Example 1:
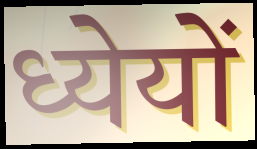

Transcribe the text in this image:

ध्येयों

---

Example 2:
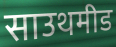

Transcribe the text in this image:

साउथमीड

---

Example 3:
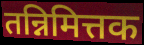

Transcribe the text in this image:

तन्निमित्तक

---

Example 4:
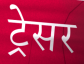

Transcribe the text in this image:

ट्रेसर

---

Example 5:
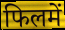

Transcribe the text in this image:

फिलमें